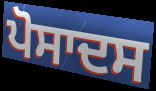
ਪੋਸਾਦਸ